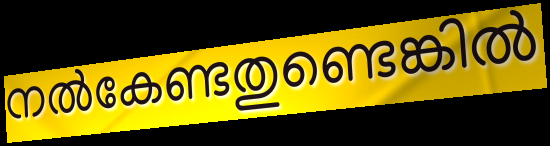
നൽകേണ്ടതുണ്ടെങ്കിൽ